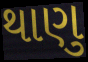
થાણુ